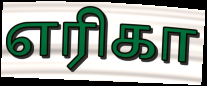
எரிகா